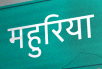
महुरिया